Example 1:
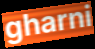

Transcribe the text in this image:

gharni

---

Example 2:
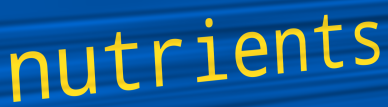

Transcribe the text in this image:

nutrients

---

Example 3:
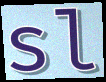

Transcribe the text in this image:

sl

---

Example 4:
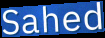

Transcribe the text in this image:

Sahed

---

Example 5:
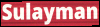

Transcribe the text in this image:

Sulayman